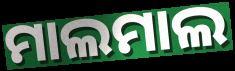
ମାଲମାଲ